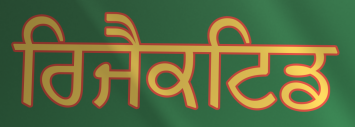
ਰਿਜੈਕਟਿਡ